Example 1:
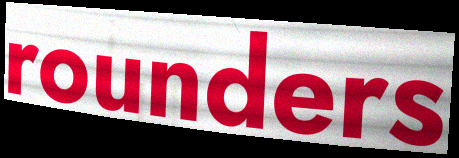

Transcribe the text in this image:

rounders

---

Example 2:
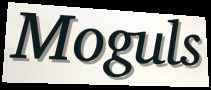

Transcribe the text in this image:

Moguls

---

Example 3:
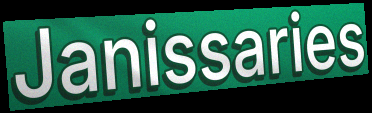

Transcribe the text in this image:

Janissaries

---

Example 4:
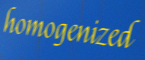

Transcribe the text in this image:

homogenized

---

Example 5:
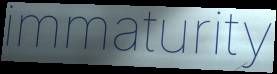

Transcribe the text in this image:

immaturity